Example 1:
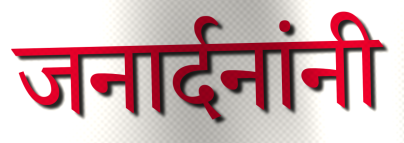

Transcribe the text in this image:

जनार्दनांनी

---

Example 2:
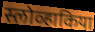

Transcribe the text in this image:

स्लोव्हाकिया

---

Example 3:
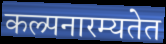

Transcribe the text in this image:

कल्पनारम्यतेत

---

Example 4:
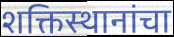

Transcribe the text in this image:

शक्तिस्थानांचा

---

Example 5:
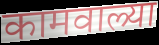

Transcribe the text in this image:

कामवाल्या